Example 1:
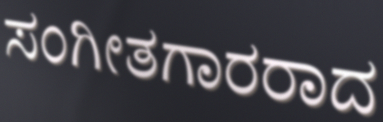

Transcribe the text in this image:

ಸಂಗೀತಗಾರರಾದ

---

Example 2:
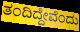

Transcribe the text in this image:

ತಂದಿದ್ದೇವೆಂದು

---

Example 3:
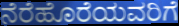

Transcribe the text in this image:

ನೆರೆಹೊರೆಯವರಿಗೆ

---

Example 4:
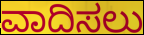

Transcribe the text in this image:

ವಾದಿಸಲು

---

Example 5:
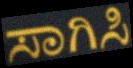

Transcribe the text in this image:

ಸಾಗಿಸಿ